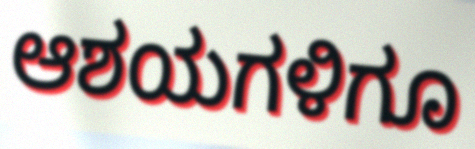
ಆಶಯಗಳಿಗೂ